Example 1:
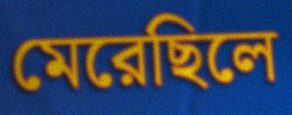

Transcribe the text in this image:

মেরেছিলে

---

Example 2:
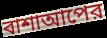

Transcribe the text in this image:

বাশাআপের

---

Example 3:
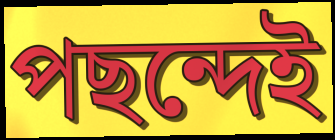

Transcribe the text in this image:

পছন্দেই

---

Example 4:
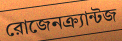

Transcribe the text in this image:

রোজেনক্র্যান্টজ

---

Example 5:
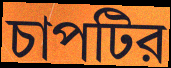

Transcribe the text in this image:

চাপটির